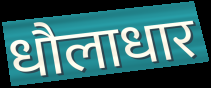
धौलाधार